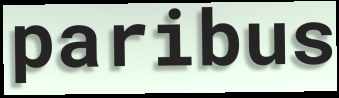
paribus